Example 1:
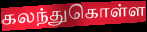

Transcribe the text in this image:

கலந்துகொள்ள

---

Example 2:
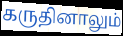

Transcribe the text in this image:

கருதினாலும்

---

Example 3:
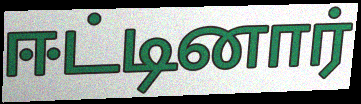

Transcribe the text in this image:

ஈட்டினார்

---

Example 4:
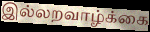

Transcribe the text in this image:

இல்லறவாழ்க்கை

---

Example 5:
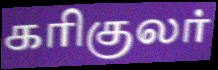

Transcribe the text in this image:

கரிகுலர்